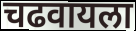
चढवायला